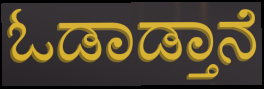
ಓಡಾಡ್ತಾನೆ